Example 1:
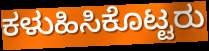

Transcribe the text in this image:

ಕಳುಹಿಸಿಕೊಟ್ಟರು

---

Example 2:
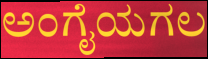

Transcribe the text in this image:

ಅಂಗೈಯಗಲ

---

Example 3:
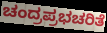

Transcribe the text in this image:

ಚಂದ್ರಪ್ರಭಚರಿತೆ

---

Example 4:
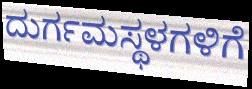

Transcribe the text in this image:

ದುರ್ಗಮಸ್ಥಳಗಳಿಗೆ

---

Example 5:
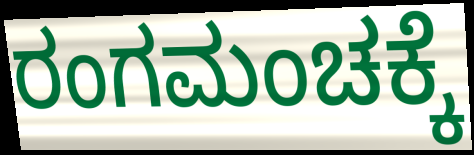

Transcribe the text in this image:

ರಂಗಮಂಚಕ್ಕೆ